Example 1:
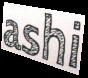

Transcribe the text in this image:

ashi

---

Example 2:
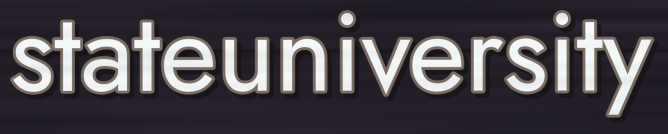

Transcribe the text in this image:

stateuniversity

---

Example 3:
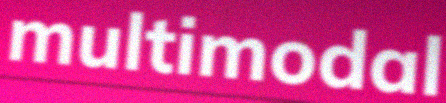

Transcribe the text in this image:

multimodal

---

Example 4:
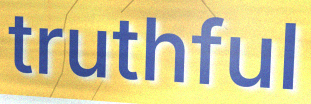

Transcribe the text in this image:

truthful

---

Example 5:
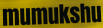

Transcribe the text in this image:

mumukshu